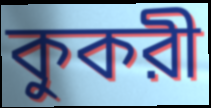
কুকরী